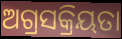
ଅଗ୍ରସକ୍ରିୟତା